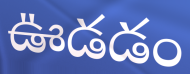
ఊడడం